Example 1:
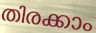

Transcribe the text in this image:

തിരക്കാം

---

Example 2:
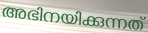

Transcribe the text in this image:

അഭിനയിക്കുന്നത്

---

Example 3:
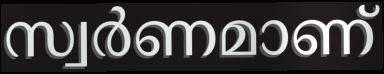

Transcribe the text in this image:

സ്വർണമാണ്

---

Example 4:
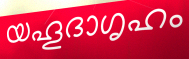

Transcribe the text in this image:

യഹൂദാഗൃഹം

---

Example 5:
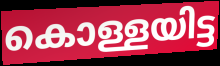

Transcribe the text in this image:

കൊള്ളയിട്ട